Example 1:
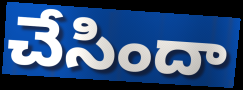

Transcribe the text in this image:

చేసిందా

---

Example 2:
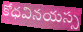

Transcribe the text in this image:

కోధవినయస్స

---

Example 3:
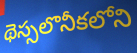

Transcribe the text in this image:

థెస్సలొనీకలోని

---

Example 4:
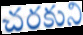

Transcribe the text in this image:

చరకుని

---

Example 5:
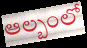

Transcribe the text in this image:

ఆల్బంలో